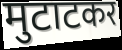
मुटाटकर